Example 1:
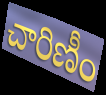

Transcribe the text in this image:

చారిణీం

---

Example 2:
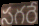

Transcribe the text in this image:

సగరే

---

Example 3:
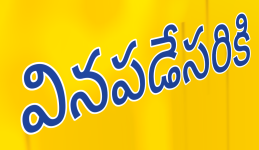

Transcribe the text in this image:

వినపడేసరికి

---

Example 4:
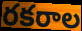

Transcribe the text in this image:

రకరాల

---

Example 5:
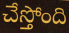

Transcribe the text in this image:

చేస్తోంది